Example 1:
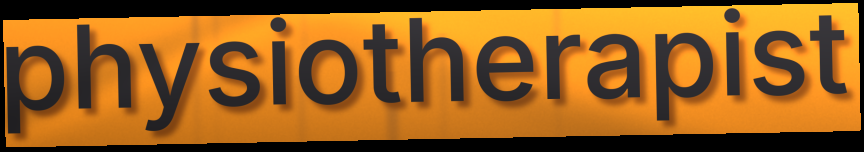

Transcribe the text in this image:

physiotherapist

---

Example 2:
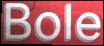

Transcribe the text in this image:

Bole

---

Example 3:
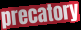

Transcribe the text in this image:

precatory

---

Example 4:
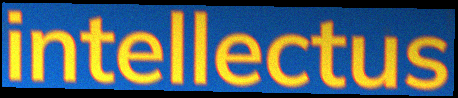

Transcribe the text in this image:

intellectus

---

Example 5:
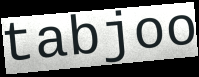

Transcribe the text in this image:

tabjoo